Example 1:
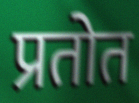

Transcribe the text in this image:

प्रतोत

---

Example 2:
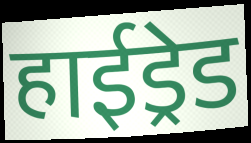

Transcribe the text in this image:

हाईड्रेड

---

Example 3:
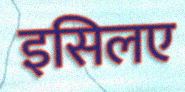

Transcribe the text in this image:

इसिलए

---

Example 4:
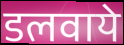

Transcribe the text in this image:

डलवाये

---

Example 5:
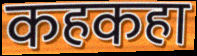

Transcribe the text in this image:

कहकहा